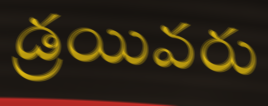
డ్రయివరు